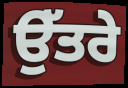
ਉੱਤਰੇ